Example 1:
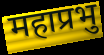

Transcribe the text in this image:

महाप्रभु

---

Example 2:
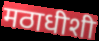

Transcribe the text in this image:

मठाधीशी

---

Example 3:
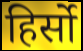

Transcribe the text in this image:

हिर्सो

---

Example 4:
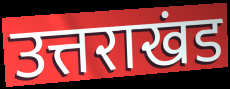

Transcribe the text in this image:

उत्तराखंड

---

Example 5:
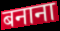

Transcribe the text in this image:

बनाना